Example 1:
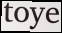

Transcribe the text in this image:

toye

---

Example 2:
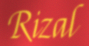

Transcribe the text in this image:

Rizal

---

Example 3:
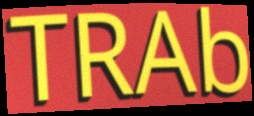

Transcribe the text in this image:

TRAb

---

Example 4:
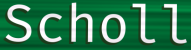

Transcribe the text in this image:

Scholl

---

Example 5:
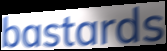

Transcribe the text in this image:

bastards